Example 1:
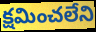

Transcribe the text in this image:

క్షమించలేని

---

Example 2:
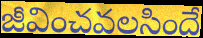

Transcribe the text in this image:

జీవించవలసిందే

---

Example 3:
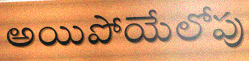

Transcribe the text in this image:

అయిపోయేలోపు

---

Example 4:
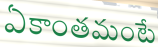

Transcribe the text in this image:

ఏకాంతమంటే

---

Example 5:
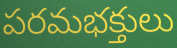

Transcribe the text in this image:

పరమభక్తులు